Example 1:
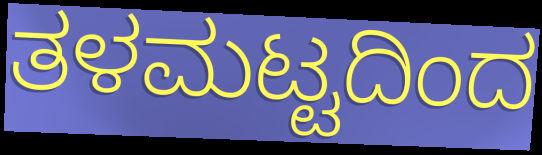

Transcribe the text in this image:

ತಳಮಟ್ಟದಿಂದ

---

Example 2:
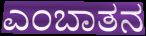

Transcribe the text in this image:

ಎಂಬಾತನ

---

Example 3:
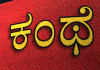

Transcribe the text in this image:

ಕಂಥೆ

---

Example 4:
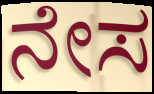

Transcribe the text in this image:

ನೇಸ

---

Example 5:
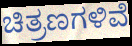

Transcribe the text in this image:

ಚಿತ್ರಣಗಳಿವೆ